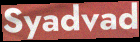
Syadvad